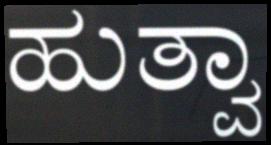
ಹುತ್ವಾ